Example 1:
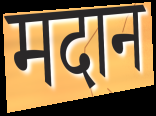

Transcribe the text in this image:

मदान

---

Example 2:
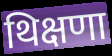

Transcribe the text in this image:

थिक्षणा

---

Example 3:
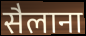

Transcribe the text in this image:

सैलाना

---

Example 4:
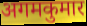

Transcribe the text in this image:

अगमकुमार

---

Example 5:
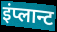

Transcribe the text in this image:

इंप्लान्ट